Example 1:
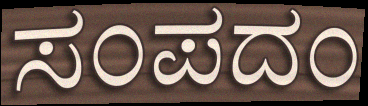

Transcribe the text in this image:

ಸಂಪದಂ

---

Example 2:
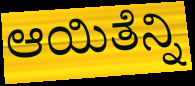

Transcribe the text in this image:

ಆಯಿತೆನ್ನಿ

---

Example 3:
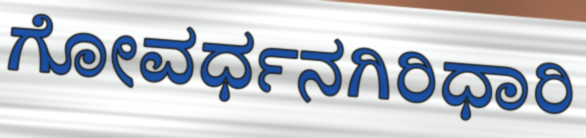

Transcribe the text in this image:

ಗೋವರ್ಧನಗಿರಿಧಾರಿ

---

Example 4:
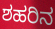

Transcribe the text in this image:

ಶಹರಿನ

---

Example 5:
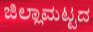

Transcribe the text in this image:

ಜಿಲ್ಲಾಮಟ್ಟದ